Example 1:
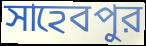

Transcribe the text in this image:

সাহেবপুর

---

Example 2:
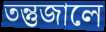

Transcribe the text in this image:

তন্তুজালে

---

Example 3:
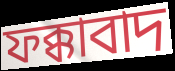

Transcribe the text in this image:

ফক্কাবাদ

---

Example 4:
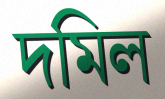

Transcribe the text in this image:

দমিল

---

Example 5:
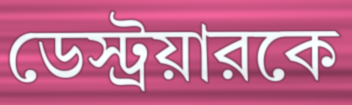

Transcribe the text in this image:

ডেস্ট্রয়ারকে